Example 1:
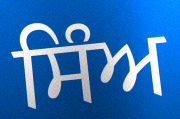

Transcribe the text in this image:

ਸਿੰਅ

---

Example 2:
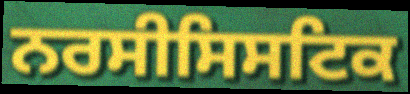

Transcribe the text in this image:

ਨਰਸੀਸਿਸਟਿਕ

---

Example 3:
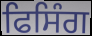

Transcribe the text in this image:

ਫਿਸਿੰਗ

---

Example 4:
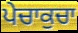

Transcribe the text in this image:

ਪੇਚਾਕੁਚਾ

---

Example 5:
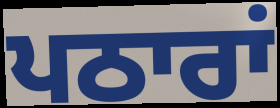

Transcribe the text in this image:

ਪਠਾਰਾਂ